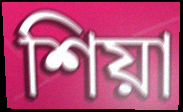
শিয়া